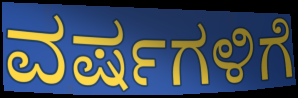
ವರ್ಷಗಳಿಗೆ